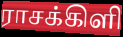
ராசக்கிளி